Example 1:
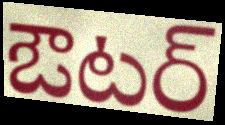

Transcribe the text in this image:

ఔటర్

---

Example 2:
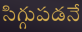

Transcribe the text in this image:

సిగ్గుపడనే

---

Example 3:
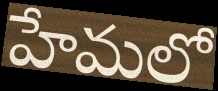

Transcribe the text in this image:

హేమలో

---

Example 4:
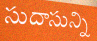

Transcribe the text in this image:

సుదాసున్ని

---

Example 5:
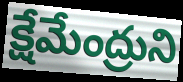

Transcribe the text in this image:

క్షేమేంద్రుని